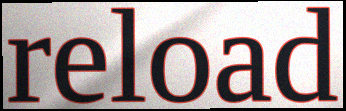
reload